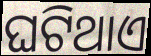
ଘଟିଥାଏ